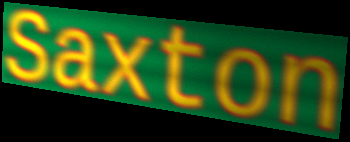
Saxton